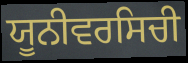
ਯੂਨੀਵਰਸਿਚੀ